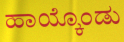
ಹಾಯ್ಕೊಂಡು